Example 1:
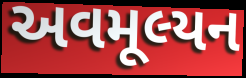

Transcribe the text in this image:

અવમૂલ્યન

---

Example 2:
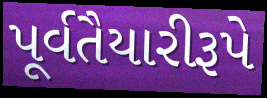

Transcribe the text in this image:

પૂર્વતૈયારીરૂપે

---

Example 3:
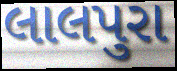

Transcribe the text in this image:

લાલપુરા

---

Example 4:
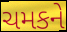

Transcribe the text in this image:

ચમકને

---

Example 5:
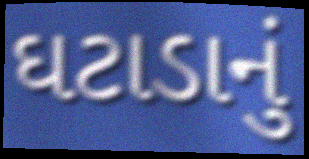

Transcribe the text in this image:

ઘટાડાનું